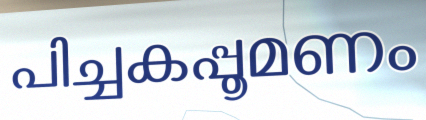
പിച്ചകപ്പൂമണം